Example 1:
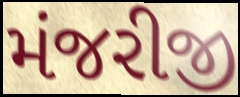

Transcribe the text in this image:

મંજરીજી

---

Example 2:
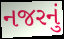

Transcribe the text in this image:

નજરનું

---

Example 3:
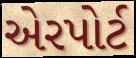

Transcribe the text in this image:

એરપોર્ટ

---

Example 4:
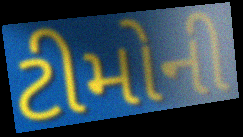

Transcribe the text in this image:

ટીમોની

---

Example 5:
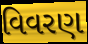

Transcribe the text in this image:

વિવરણ